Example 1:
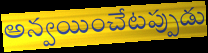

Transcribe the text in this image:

అన్వయించేటప్పుడు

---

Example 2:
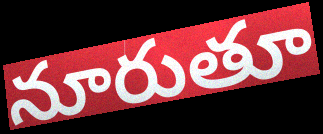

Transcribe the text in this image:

నూరుతూ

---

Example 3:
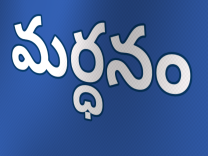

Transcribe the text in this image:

మర్ధనం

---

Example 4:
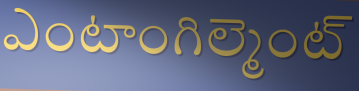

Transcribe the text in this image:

ఎంటాంగిల్మెంట్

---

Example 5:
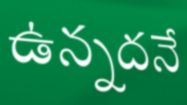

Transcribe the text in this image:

ఉన్నదనే